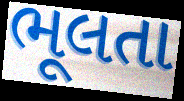
ભૂલતા